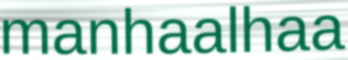
manhaalhaa